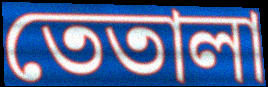
তেতালা